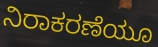
ನಿರಾಕರಣೆಯೂ